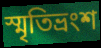
স্মৃতিভ্রংশ